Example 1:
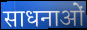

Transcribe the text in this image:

साधनाओं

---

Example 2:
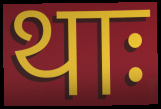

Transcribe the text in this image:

थाः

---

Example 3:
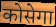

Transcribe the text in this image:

कोसेगा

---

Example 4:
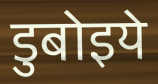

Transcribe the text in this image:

डुबोइये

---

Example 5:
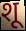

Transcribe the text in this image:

शू